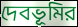
দেবভূমির